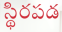
స్థిరపడ